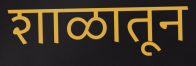
शाळातून